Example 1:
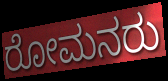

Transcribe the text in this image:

ರೋಮನರು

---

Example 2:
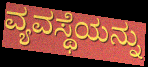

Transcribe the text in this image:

ವ್ಯವಸ್ಥೆಯನ್ನು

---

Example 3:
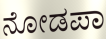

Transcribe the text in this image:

ನೋಡಪಾ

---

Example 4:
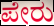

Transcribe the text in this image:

ಪೇರು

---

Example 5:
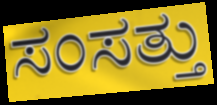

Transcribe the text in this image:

ಸಂಸತ್ತು